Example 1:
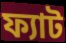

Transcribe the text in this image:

ফ্যাট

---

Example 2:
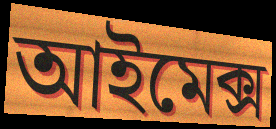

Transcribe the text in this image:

আইমেক্স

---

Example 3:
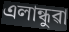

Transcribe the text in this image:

এলান্ধুৱা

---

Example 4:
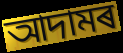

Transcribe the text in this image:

আদামৰ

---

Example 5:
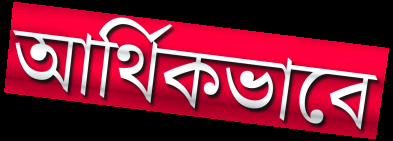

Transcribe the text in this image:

আৰ্থিকভাবে